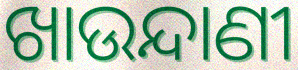
ଖାଉନ୍ଦାଣୀ